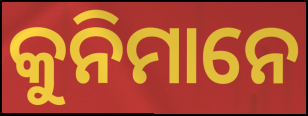
କୁନିମାନେ